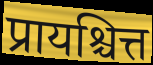
प्रायश्चित्त